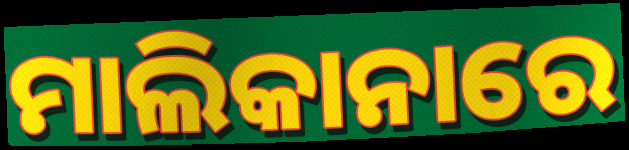
ମାଲିକାନାରେ